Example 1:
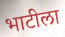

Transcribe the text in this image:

भाटीला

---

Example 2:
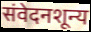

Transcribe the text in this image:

संवेदनशून्य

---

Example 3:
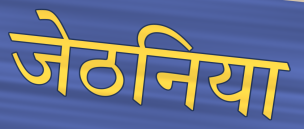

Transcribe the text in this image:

जेठनिया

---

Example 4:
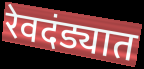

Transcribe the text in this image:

रेवदंड्यात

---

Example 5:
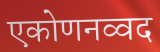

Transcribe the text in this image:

एकोणनव्वद